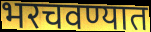
भरचवण्यात